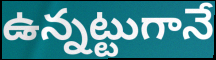
ఉన్నట్టుగానే